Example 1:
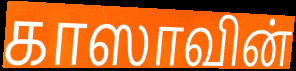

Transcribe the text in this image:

காஸாவின்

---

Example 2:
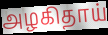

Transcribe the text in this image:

அழகிதாய்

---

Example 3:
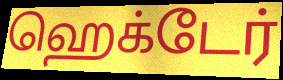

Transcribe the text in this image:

ஹெக்டேர்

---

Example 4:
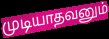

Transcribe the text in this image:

முடியாதவனும்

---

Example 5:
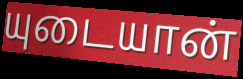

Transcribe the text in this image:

யுடையான்